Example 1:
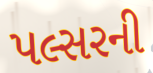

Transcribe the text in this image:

પલ્સરની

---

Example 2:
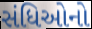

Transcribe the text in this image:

સંધિઓનો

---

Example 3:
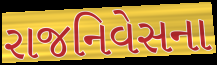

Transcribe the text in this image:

રાજનિવેસના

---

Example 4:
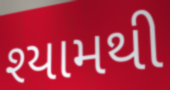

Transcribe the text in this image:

શ્યામથી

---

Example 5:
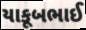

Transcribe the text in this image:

યાકૂબભાઈ